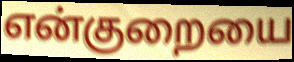
என்குறையை